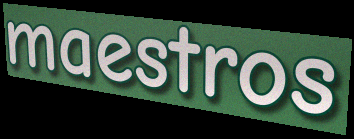
maestros